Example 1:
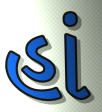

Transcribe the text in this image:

હાં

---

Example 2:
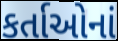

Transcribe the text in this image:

કર્તાઓનાં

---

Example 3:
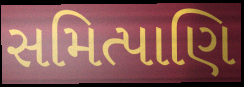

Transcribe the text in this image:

સમિત્પાણિ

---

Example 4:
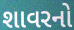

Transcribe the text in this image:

શાવરનો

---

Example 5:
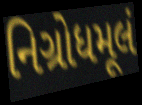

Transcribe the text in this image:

નિગ્રોધમૂલં